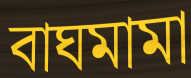
বাঘমামা